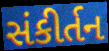
સંકીર્તન